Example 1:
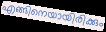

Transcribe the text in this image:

എങ്ങിനെയായിരിക്കും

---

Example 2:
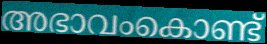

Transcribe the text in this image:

അഭാവംകൊണ്ട്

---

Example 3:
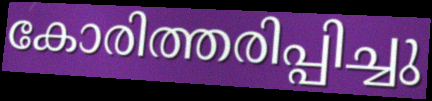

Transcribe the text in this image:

കോരിത്തരിപ്പിച്ചു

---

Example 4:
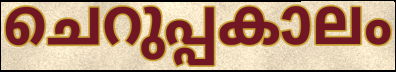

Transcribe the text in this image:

ചെറുപ്പകാലം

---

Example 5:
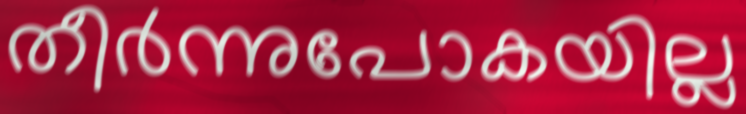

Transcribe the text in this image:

തീർന്നുപോകയില്ല